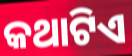
କଥାଟିଏ